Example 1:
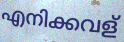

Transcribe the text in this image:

എനിക്കവള്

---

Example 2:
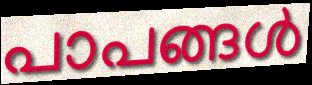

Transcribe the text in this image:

പാപങ്ങൾ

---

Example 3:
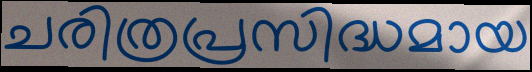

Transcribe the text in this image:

ചരിത്രപ്രസിദ്ധമായ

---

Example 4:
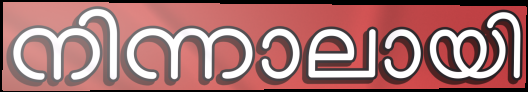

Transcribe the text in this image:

നിന്നാലായി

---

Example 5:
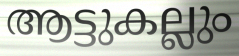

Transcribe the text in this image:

ആട്ടുകല്ലും